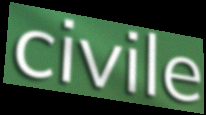
civile